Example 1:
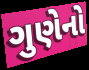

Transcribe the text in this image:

ગુણેનો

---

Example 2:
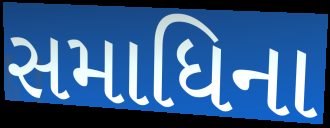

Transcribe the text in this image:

સમાધિના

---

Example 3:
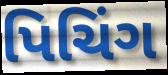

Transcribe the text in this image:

પિચિંગ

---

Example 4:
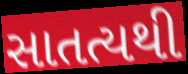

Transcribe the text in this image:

સાતત્યથી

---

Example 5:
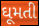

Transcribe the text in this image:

ઘૂમતી